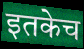
इतकेच